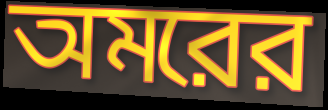
অমরের